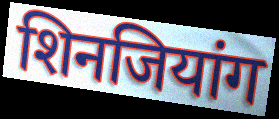
शिनजियांग